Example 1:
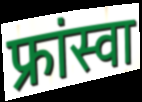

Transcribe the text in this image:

फ्रांस्वा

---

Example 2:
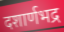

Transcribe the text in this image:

दशार्णभद्र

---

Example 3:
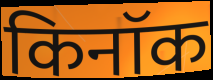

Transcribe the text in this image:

किनॉक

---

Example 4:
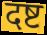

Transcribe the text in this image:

दष्ट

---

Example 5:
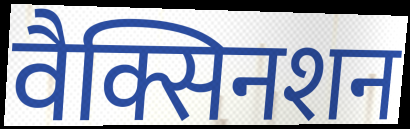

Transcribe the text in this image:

वैक्सिनशन